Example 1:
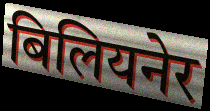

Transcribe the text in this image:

बिलियनेर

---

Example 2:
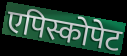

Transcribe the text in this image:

एपिस्कोपेट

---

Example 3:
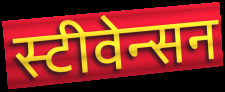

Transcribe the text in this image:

स्टीवेन्सन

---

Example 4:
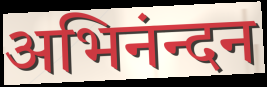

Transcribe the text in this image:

अभिनंन्दन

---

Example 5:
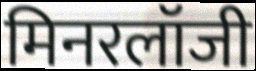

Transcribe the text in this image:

मिनरलॉजी